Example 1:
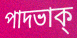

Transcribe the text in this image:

পাদভাক্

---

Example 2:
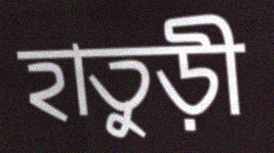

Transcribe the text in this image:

হাতুড়ী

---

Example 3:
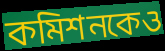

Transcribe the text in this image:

কমিশনকেও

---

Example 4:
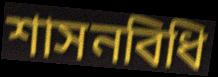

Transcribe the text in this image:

শাসনবিধি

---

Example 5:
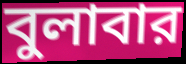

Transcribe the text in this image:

বুলাবার